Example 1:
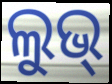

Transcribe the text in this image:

ଲୁଭ୍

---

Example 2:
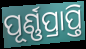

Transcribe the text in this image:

ପୂର୍ଣ୍ଣପ୍ରାପ୍ତି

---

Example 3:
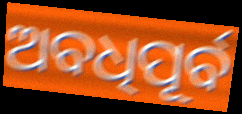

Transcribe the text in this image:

ଅବଧିପୂର୍ବ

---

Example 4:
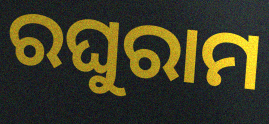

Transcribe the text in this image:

ରଘୁରାମ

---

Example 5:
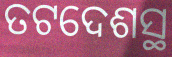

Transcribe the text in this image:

ତଟଦେଶସ୍ଥ